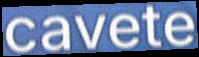
cavete